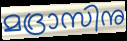
മദ്രാസിനു